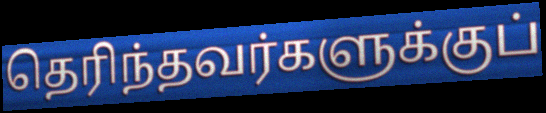
தெரிந்தவர்களுக்குப்